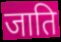
जाति